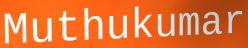
Muthukumar